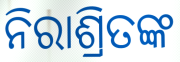
ନିରାଶ୍ରିତଙ୍କ